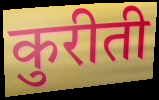
कुरीती